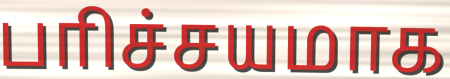
பரிச்சயமாக